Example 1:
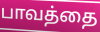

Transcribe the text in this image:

பாவத்தை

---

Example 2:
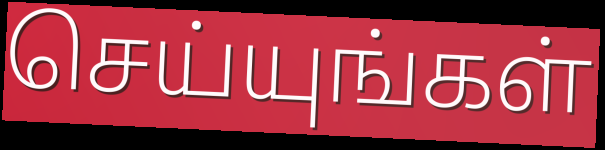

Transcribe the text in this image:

செய்யுங்கள்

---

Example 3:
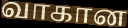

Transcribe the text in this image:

வாகான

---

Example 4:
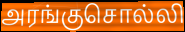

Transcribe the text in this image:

அரங்குசொல்லி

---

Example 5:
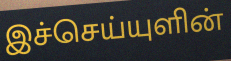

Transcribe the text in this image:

இச்செய்யுளின்